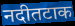
नदीतटाक